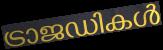
ട്രാജഡികൾ